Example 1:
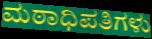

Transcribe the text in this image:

ಮಠಾಧಿಪತಿಗಳು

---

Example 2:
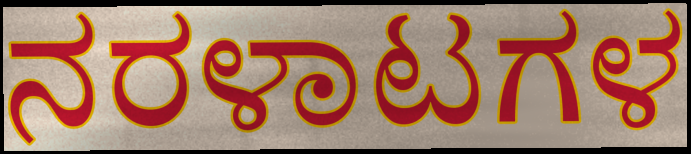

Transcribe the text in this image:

ನರಳಾಟಗಳ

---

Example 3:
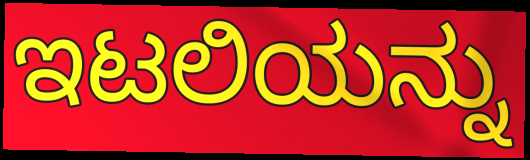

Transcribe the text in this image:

ಇಟಲಿಯನ್ನು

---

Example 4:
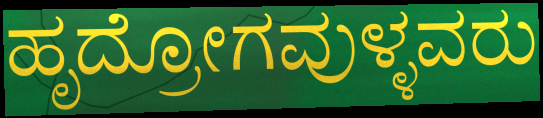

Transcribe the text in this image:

ಹೃದ್ರೋಗವುಳ್ಳವರು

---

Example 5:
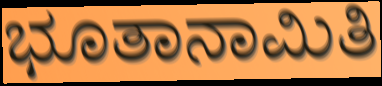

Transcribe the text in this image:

ಭೂತಾನಾಮಿತಿ